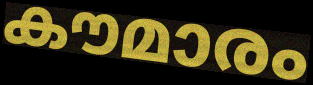
കൗമാരം